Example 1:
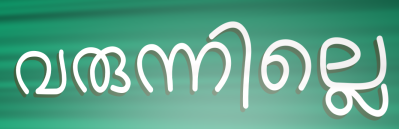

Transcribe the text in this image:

വരുന്നില്ലെ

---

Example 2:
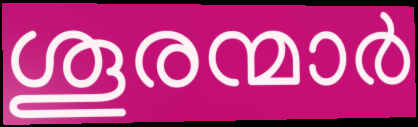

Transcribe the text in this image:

ശൂരന്മാർ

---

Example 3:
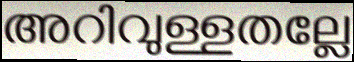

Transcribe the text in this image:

അറിവുള്ളതല്ലേ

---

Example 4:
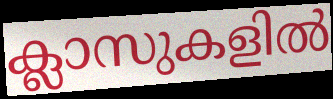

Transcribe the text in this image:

ക്ലാസുകളിൽ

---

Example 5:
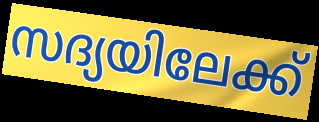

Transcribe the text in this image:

സദ്യയിലേക്ക്